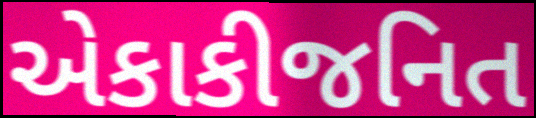
એકાકીજનિત